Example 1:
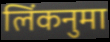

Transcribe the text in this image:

लिंकनुमा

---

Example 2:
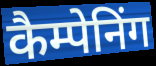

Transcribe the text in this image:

कैम्पेनिंग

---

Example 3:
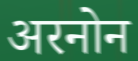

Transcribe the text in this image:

अरनोन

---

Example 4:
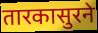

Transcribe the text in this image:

तारकासुरने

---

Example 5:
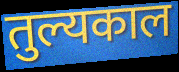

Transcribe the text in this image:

तुल्यकाल